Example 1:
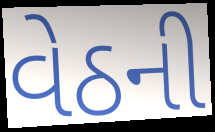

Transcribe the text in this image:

વેઠની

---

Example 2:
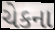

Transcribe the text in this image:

ચેકના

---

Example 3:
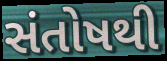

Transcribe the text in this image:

સંતોષથી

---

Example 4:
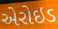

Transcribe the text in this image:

એરોઇડ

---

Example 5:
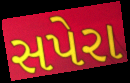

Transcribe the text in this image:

સપેરા